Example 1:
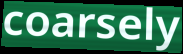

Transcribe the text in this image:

coarsely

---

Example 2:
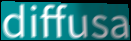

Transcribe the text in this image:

diffusa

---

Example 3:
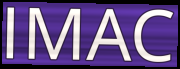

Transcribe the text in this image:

IMAC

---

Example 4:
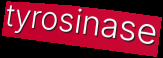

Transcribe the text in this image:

tyrosinase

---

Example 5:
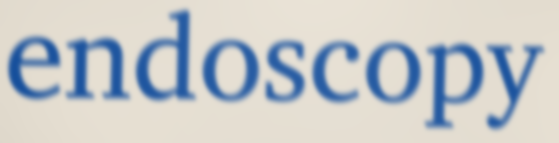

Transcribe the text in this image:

endoscopy